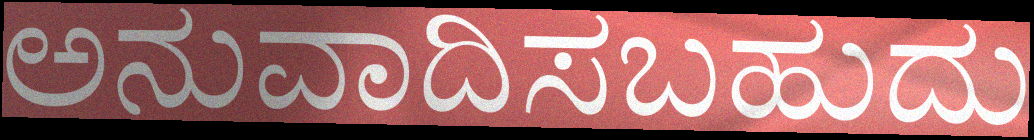
ಅನುವಾದಿಸಬಹುದು